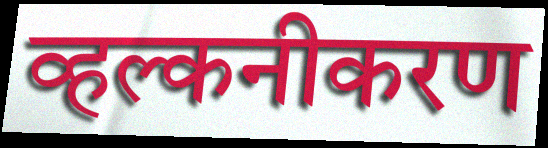
व्हल्कनीकरण